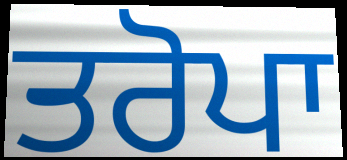
ਤਰੋਪਾ